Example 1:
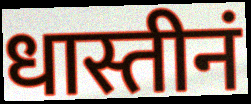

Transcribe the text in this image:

धास्तीनं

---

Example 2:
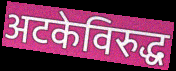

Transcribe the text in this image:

अटकेविरुद्ध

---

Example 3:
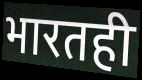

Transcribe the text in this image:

भारतही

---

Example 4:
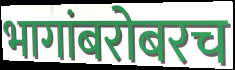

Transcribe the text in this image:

भागांबरोबरच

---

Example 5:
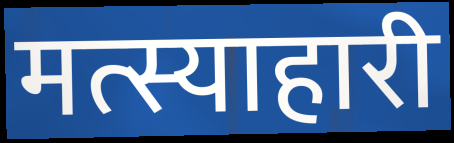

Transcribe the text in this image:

मत्स्याहारी